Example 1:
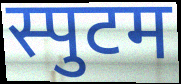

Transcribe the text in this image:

स्पुटम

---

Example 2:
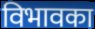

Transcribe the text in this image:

विभावका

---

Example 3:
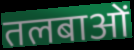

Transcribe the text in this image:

तलबाओं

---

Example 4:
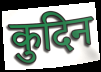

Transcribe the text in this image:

कुदिन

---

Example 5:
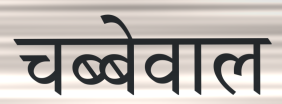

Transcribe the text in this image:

चब्बेवाल